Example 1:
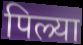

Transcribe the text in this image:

पिल्या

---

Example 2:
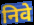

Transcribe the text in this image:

निवे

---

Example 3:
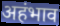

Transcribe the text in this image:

अहंभाव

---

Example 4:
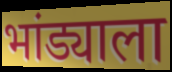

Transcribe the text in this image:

भांड्याला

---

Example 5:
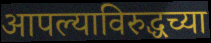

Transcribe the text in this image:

आपल्याविरुद्धच्या